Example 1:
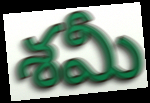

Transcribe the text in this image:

శమీ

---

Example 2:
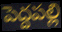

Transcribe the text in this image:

పెద్దపల్లి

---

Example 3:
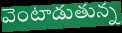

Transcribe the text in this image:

వెంటాడుతున్న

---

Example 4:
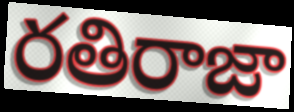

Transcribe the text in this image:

రతిరాజా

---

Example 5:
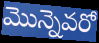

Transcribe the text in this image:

మొన్నెవరో